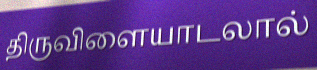
திருவிளையாடலால்